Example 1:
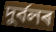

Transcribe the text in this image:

দুৰ্বলৰ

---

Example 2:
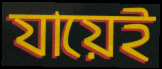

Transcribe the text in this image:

যায়েই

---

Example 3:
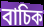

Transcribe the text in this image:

বাচিক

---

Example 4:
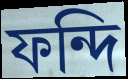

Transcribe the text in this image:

ফন্দি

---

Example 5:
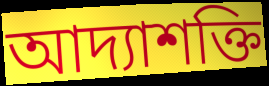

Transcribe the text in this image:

আদ্যাশক্তি